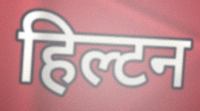
हिल्टन